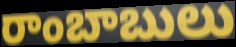
రాంబాబులు